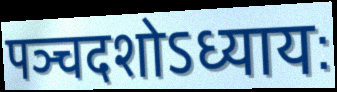
पञ्चदशोऽध्यायः